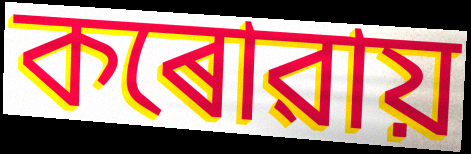
কৰোৱায়